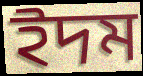
ইদম